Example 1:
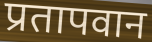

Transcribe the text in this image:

प्रतापवान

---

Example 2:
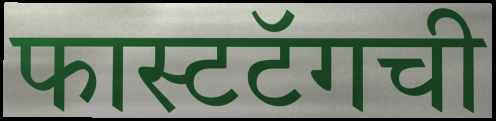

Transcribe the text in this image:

फास्टटॅगची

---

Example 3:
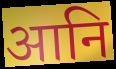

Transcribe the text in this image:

आनि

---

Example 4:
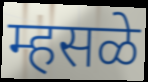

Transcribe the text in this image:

म्हसळे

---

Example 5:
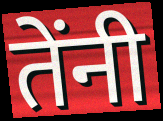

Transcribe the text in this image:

तेंनी